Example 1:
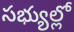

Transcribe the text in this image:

సభ్యుల్లో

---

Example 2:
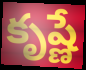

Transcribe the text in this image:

కృష్ణే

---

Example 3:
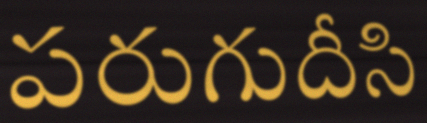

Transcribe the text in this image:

పరుగుదీసి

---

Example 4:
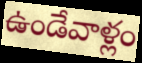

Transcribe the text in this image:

ఉండేవాళ్లం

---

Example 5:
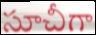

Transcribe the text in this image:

సూచీగా